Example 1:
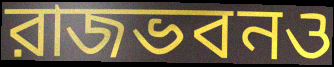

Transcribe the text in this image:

রাজভবনও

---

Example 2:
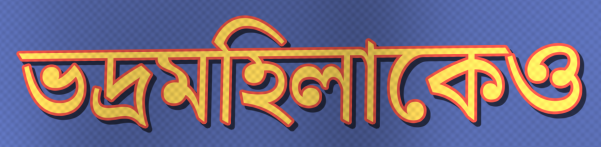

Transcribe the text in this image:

ভদ্রমহিলাকেও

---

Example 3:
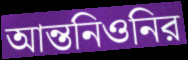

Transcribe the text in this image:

আন্তনিওনির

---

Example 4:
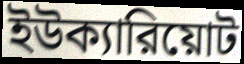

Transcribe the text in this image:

ইউক্যারিয়োট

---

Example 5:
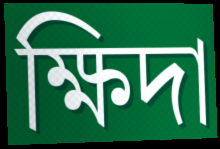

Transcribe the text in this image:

ক্ষিদা